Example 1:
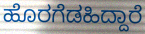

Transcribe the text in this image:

ಹೊರಗೆಡಹಿದ್ದಾರೆ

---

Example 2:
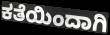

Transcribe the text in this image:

ಕತೆಯಿಂದಾಗಿ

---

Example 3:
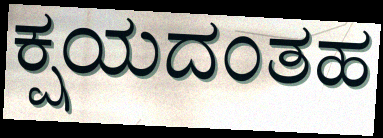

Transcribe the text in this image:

ಕ್ಷಯದಂತಹ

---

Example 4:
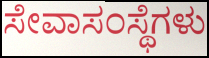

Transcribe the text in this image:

ಸೇವಾಸಂಸ್ಥೆಗಳು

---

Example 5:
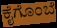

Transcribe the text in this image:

ಕೈಗೊಂಬೆ